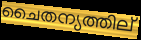
ചൈതന്യത്തില്